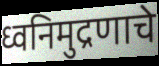
ध्वनिमुद्रणाचे